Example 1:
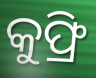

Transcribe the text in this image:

କୁଫ୍ରି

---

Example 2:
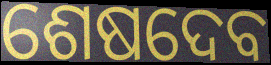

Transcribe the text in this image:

ଶେଷଦେବ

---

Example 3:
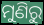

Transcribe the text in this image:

ମୁଣିରୁ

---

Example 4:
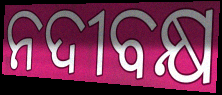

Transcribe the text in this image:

ନଦୀବକ୍ଷ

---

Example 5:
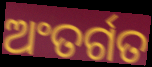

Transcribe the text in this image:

ଅଂତର୍ଗତ